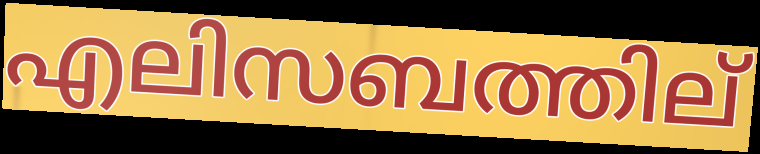
എലിസബത്തില്